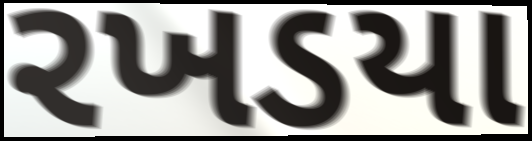
રખડયા